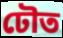
ঢৌত